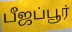
பீஜப்பூர்